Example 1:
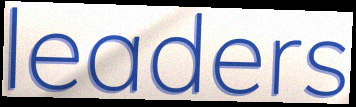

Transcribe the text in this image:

leaders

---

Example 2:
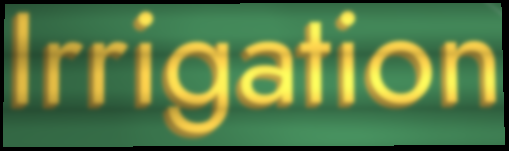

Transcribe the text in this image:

Irrigation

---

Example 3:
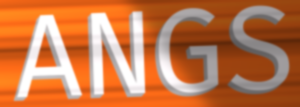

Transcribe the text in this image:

ANGS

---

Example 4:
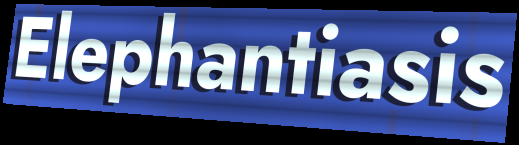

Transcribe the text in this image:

Elephantiasis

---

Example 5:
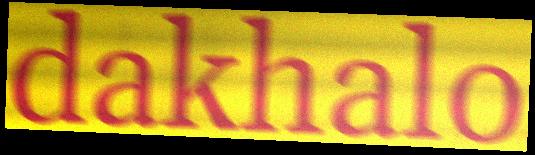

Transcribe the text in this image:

dakhalo